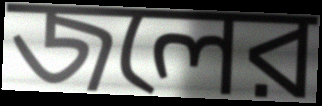
জলের